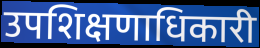
उपशिक्षणाधिकारी